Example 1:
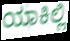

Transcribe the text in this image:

ಯಾಕಿಲ್ಲಿ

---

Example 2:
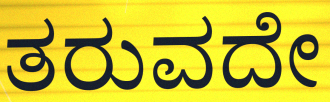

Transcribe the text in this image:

ತರುವದೇ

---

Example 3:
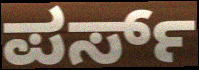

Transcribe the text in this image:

ಪರ್ಸ್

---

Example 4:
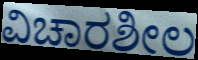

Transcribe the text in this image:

ವಿಚಾರಶೀಲ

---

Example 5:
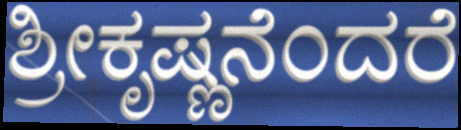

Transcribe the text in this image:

ಶ್ರೀಕೃಷ್ಣನೆಂದರೆ